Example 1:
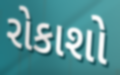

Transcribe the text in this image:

રોકાશો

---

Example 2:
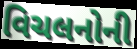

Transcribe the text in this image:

વિચલનોની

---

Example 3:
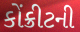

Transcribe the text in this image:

કોંક્રીટની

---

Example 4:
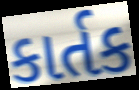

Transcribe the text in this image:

કાર્તક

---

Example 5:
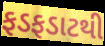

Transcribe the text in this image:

ફડફડાટથી